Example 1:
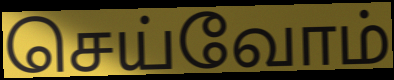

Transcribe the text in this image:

செய்வோம்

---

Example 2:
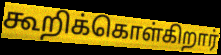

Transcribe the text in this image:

கூறிக்கொள்கிறார்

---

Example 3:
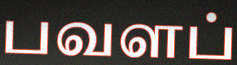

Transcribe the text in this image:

பவளப்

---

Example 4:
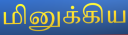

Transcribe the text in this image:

மினுக்கிய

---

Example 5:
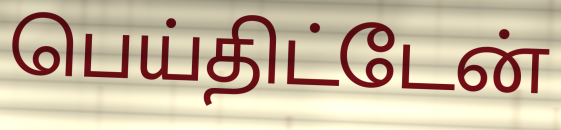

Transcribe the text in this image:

பெய்திட்டேன்